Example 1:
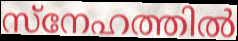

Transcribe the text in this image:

സ്നേഹത്തിൽ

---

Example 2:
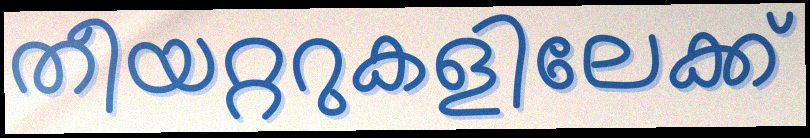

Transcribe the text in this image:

തീയറ്ററുകളിലേക്ക്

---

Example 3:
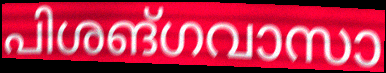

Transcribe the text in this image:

പിശങ്ഗവാസാ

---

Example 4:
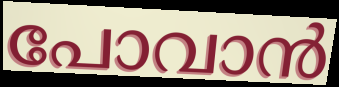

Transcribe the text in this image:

പോവാൻ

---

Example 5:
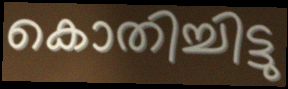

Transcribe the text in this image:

കൊതിച്ചിട്ടു